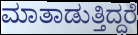
ಮಾತಾಡುತ್ತಿದ್ದರೆ